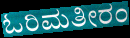
ಓರಿಮತೀರಂ